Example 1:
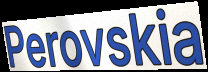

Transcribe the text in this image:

Perovskia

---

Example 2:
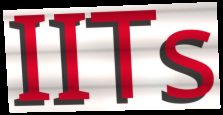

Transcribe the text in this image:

IITs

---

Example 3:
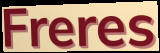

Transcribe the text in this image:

Freres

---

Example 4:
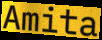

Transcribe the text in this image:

Amita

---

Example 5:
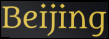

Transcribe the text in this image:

Beijing